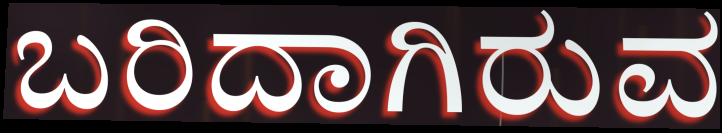
ಬರಿದಾಗಿರುವ